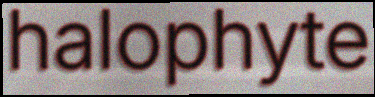
halophyte